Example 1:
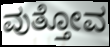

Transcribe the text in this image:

ವುತ್ತೋವ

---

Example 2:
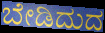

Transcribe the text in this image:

ಬೇಡಿದುದ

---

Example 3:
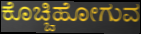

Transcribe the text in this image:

ಕೊಚ್ಚಿಹೋಗುವ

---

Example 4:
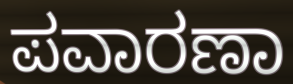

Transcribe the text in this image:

ಪವಾರಣಾ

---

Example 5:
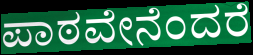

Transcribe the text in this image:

ಪಾಠವೇನೆಂದರೆ